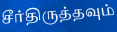
சீர்திருத்தவும்